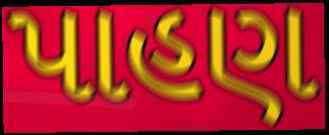
પાહણ